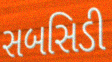
સબસિડી